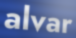
alvar